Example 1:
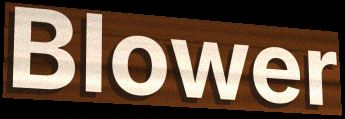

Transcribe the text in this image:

Blower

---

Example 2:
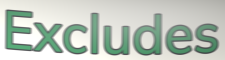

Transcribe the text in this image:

Excludes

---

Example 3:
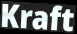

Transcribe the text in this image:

Kraft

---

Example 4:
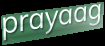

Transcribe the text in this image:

prayaag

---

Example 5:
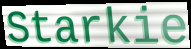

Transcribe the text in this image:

Starkie